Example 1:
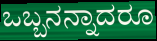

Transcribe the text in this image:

ಒಬ್ಬನನ್ನಾದರೂ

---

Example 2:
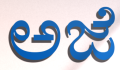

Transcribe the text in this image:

ಅಜೆ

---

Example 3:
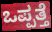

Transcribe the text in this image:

ಒಪ್ಪತ್ತೆ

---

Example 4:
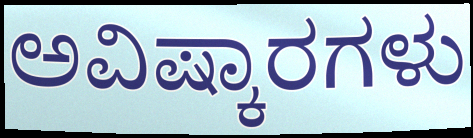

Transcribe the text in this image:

ಅವಿಷ್ಕಾರಗಳು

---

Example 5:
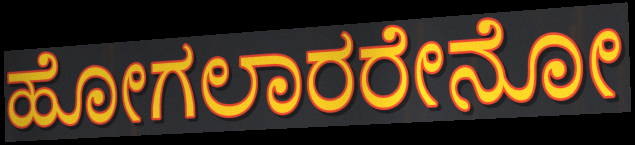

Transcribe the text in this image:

ಹೋಗಲಾರರೇನೋ